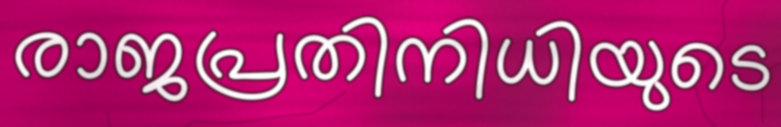
രാജപ്രതിനിധിയുടെ